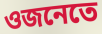
ওজনেতে